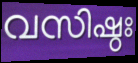
വസിഷ്ഠഃ